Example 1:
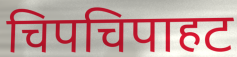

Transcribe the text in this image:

चिपचिपाहट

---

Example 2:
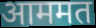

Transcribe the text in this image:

आममत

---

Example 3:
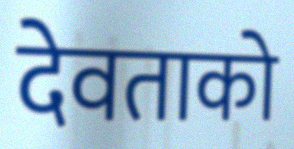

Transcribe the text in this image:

देवताको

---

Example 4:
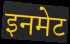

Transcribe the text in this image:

इनमेट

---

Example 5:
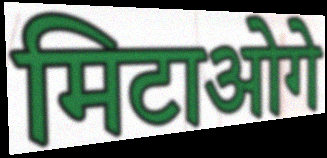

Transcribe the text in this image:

मिटाओगे